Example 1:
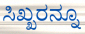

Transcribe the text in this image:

ಸಿಖ್ಖರನ್ನೂ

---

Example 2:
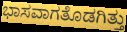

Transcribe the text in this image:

ಭಾಸವಾಗತೊಡಗಿತ್ತು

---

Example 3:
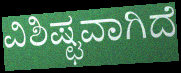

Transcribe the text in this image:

ವಿಶಿಷ್ಟವಾಗಿದೆ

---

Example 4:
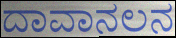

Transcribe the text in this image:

ದಾವಾನಲನ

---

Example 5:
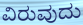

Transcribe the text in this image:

ವಿರುವುದು